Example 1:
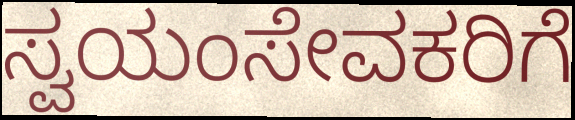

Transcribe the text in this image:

ಸ್ವಯಂಸೇವಕರಿಗೆ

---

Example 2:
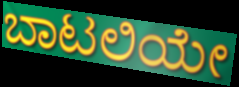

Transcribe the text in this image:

ಬಾಟಲಿಯೇ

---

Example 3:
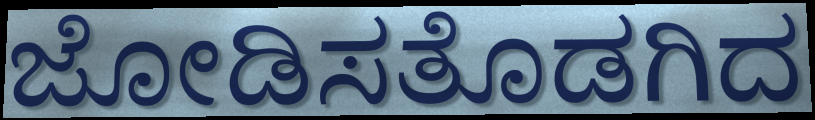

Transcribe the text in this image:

ಜೋಡಿಸತೊಡಗಿದ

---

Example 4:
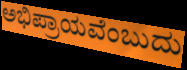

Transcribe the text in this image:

ಅಭಿಪ್ರಾಯವೆಂಬುದು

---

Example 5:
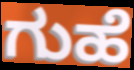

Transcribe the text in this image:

ಗುಹೆ